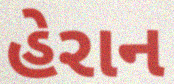
હેરાન